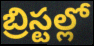
బ్రిస్టల్లో